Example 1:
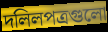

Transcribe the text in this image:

দলিলপত্রগুলো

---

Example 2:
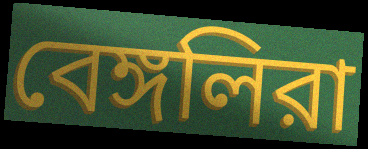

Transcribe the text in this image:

বেঙ্গলিরা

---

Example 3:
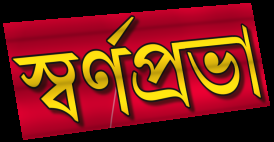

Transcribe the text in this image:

স্বর্ণপ্রভা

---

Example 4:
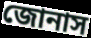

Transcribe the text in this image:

জোনাস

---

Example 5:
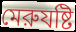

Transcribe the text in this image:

মেরুযষ্টি